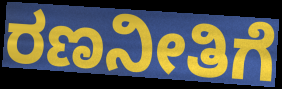
ರಣನೀತಿಗೆ